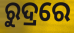
ରୁଦ୍ରରେ